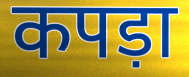
कपड़ा